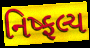
નિષ્ફલ્ય